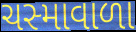
ચસ્માવાળા